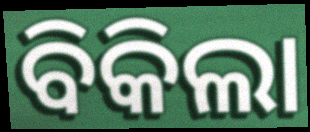
ବିକିଲା